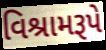
વિશ્રામરૂપે